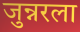
जुन्नरला